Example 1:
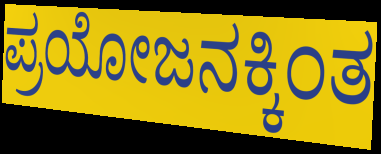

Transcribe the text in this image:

ಪ್ರಯೋಜನಕ್ಕಿಂತ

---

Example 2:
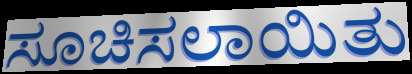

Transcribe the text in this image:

ಸೂಚಿಸಲಾಯಿತು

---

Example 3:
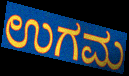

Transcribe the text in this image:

ಉಗಮ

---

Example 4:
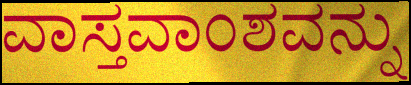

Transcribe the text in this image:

ವಾಸ್ತವಾಂಶವನ್ನು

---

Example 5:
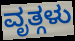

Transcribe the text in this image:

ವೃತ್ಗಳು